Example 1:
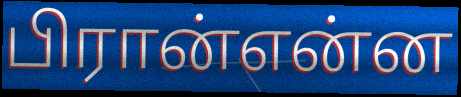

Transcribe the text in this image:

பிரான்என்ன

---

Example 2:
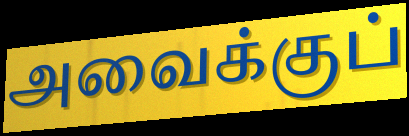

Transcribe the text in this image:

அவைக்குப்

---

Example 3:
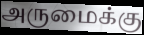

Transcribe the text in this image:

அருமைக்கு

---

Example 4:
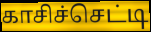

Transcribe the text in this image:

காசிச்செட்டி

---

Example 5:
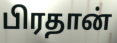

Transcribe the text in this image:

பிரதான்